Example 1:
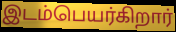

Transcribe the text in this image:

இடம்பெயர்கிறார்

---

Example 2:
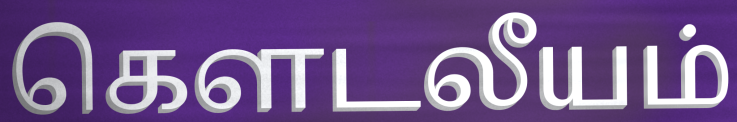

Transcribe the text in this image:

கெளடலீயம்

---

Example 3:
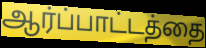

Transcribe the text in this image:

ஆர்ப்பாட்டத்தை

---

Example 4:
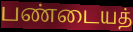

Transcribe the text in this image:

பண்டையத்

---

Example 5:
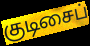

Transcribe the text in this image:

குடிசைப்